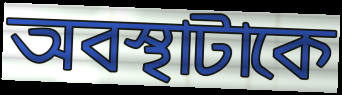
অবস্থাটাকে